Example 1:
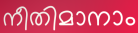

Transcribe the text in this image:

നീതിമാനാം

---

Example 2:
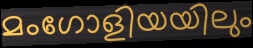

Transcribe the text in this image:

മംഗോളിയയിലും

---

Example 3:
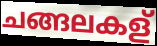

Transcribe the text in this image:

ചങ്ങലകള്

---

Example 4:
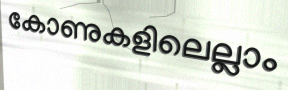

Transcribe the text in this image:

കോണുകളിലെല്ലാം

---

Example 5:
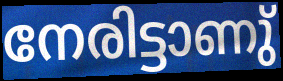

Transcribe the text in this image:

നേരിട്ടാണു്